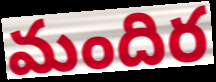
మందిర